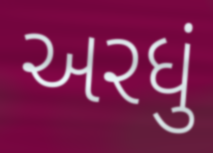
અરધું